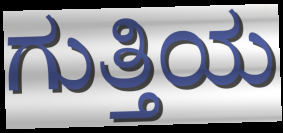
ಗುತ್ತಿಯ